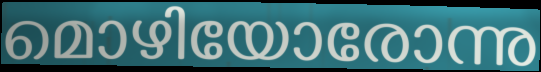
മൊഴിയോരോന്നു